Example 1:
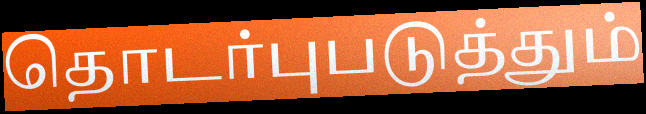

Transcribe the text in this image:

தொடர்புபடுத்தும்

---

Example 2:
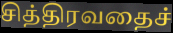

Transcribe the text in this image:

சித்திரவதைச்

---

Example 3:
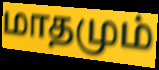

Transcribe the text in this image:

மாதமும்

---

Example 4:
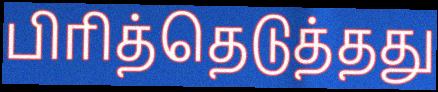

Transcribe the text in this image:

பிரித்தெடுத்தது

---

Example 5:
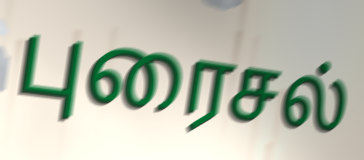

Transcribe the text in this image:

புரைசல்